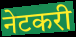
नेटकरी